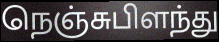
நெஞ்சுபிளந்து